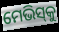
ମେଭିସ୍‌କୁ